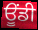
ਊਂਡੀ